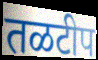
तळटीप